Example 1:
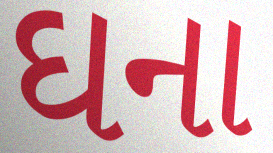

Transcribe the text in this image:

ઘના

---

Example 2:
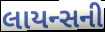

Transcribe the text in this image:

લાયન્સની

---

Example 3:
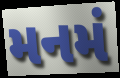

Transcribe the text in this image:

મનમં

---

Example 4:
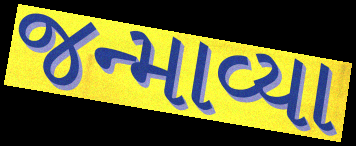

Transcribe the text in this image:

જન્માવ્યા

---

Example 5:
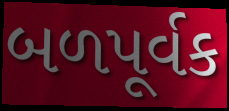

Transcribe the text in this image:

બળપૂર્વક